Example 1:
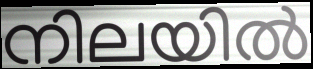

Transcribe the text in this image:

നിലയിൽ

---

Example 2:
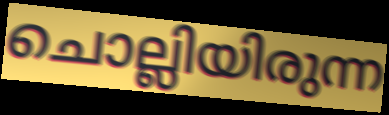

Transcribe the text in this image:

ചൊല്ലിയിരുന്ന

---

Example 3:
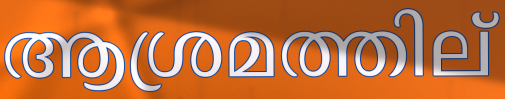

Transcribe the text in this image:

ആശ്രമത്തില്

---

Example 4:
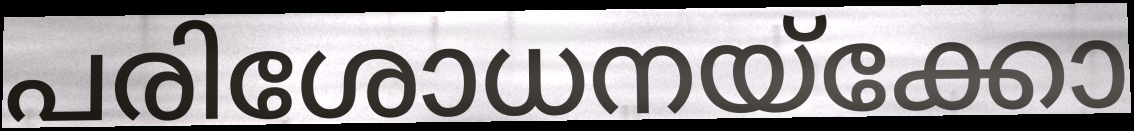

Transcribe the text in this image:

പരിശോധനയ്ക്കോ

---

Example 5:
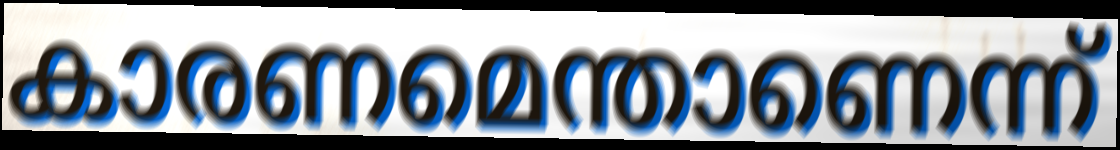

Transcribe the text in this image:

കാരണമെന്താണെന്ന്